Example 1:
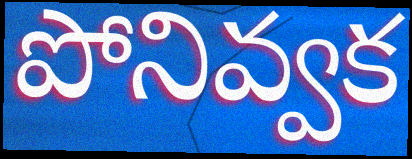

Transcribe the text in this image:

పోనివ్వక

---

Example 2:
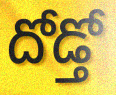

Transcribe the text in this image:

దోడ్తో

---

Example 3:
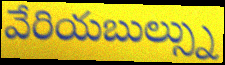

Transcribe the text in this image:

వేరియబుల్స్ను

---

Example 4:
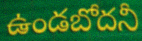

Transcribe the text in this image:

ఉండబోదనీ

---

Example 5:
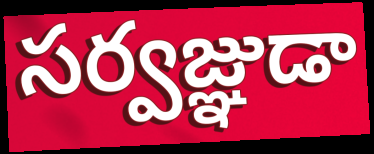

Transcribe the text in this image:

సర్వజ్ఞుడా